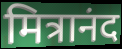
मित्रानंद